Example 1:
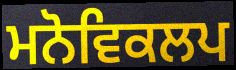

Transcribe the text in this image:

ਮਨੋਵਿਕਲਪ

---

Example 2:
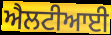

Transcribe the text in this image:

ਐਲਟੀਆਈ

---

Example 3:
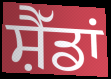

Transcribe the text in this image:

ਸ਼ੈੱਡਾਂ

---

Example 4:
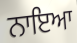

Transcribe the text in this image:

ਨਾਇਆ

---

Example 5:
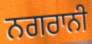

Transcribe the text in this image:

ਨਗਰਾਨੀ